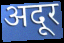
अदूर